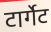
टार्गेट